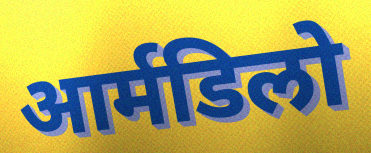
आर्मडिलो